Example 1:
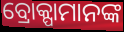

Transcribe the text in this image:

ବ୍ରୋକ୍ପାମାନଙ୍କ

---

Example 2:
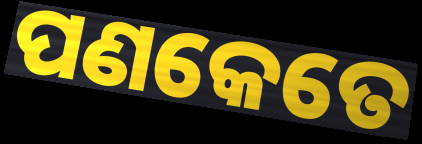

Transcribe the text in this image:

ପଣକେତେ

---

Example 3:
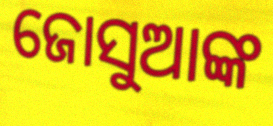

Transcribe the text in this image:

ଜୋସୁଆଙ୍କ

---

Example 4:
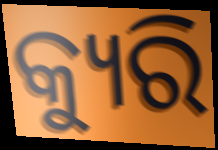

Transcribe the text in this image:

କ୍ୟୁରି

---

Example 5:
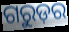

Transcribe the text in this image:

ଗରୁଡ଼ର